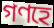
গণহে